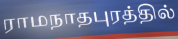
ராமநாதபுரத்தில்